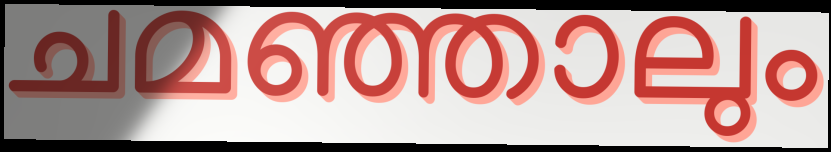
ചമഞ്ഞാലും